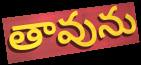
తావును